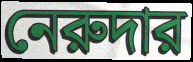
নেরুদার